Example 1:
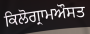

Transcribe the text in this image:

ਕਿਲੋਗ੍ਰਾਮਔਸਤ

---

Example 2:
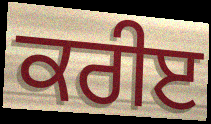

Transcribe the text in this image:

ਕਰੀੲ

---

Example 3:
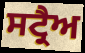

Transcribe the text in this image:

ਸਟ੍ਰੈਅ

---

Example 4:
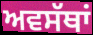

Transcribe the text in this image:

ਅਵਸੱਥਾਂ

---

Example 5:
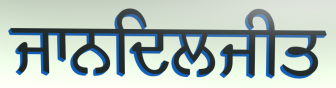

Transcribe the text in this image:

ਜਾਨਦਿਲਜੀਤ